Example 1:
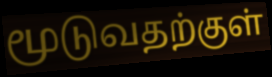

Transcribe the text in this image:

மூடுவதற்குள்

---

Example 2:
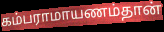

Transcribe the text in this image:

கம்பராமாயணம்தான்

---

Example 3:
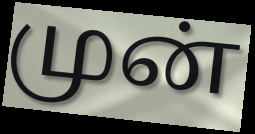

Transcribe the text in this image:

முன்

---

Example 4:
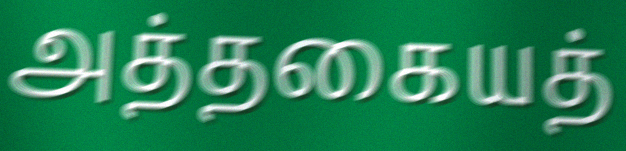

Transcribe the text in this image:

அத்தகையத்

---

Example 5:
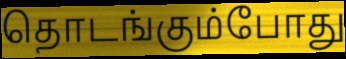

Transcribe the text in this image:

தொடங்கும்போது